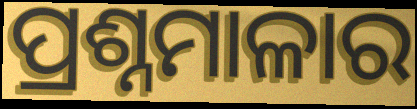
ପ୍ରଶ୍ନମାଳାର